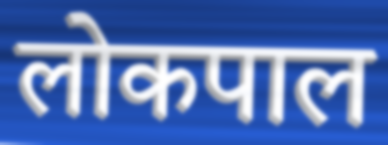
लोकपाल